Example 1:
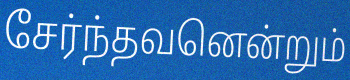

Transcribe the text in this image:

சேர்ந்தவனென்றும்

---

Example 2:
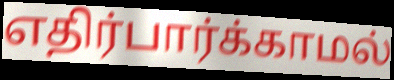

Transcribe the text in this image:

எதிர்பார்க்காமல்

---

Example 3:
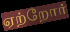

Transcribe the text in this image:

ஏற்றோர்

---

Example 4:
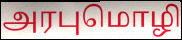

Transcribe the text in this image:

அரபுமொழி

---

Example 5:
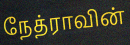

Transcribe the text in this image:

நேத்ராவின்